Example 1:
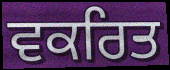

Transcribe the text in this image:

ਵਕਰਿਤ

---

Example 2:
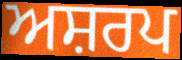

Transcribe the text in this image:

ਅਸ਼ਰਪ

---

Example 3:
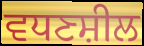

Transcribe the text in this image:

ਵਧਣਸ਼ੀਲ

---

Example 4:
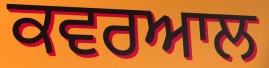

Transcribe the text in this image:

ਕਵਰਆਲ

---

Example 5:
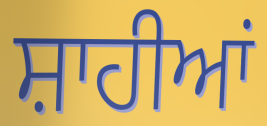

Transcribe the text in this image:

ਸ਼ਾਹੀਆਂ